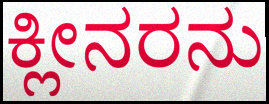
ಕ್ಲೀನರನು